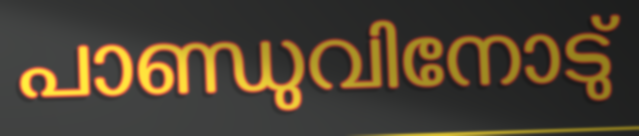
പാണ്ഡുവിനോടു്